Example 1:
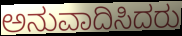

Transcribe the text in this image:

ಅನುವಾದಿಸಿದರು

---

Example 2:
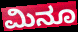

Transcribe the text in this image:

ಮಿನೂ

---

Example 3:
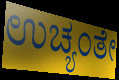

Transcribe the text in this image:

ಉಚ್ಯಂತೇ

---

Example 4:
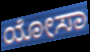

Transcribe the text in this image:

ಯೋಸಾ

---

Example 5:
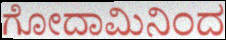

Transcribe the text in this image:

ಗೋದಾಮಿನಿಂದ